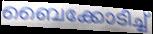
ബൈക്കോടിച്ച്